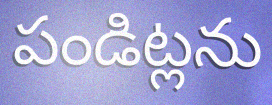
పండిట్లను